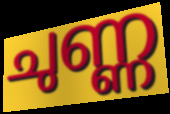
ചുണ്ണ